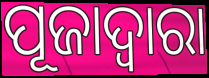
ପୂଜାଦ୍ଵାରା